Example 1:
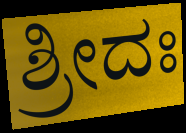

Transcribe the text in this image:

ಶ್ರೀದಃ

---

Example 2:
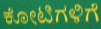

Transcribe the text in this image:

ಕೋಟಿಗಳಿಗೆ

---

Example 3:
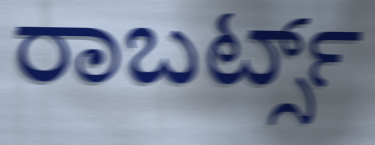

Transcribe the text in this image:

ರಾಬರ್ಟ್ಸ್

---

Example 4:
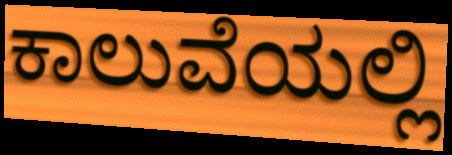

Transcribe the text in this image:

ಕಾಲುವೆಯಲ್ಲಿ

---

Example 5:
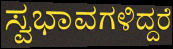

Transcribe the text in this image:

ಸ್ವಭಾವಗಳಿದ್ದರೆ